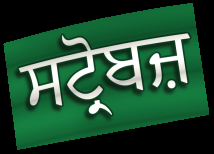
ਸਟ੍ਰੋਬਜ਼